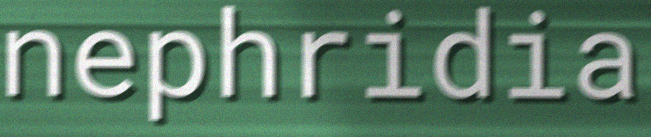
nephridia